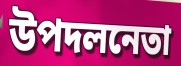
উপদলনেতা